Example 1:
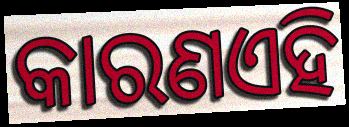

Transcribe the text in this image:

କାରଣଏହି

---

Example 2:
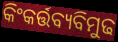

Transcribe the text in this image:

କିଂକର୍ତ୍ତବ୍ଯବିମୁଢ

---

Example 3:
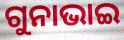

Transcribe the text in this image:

ଗୁନାଭାଇ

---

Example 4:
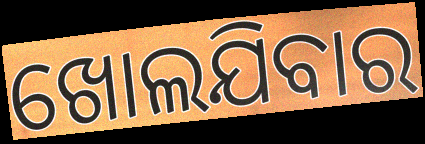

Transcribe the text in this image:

ଖୋଲଯିବାର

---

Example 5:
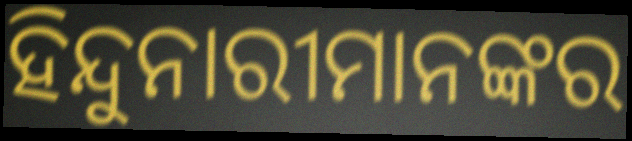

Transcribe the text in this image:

ହିନ୍ଦୁନାରୀମାନଙ୍କର